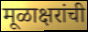
मूळाक्षरांची